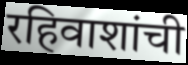
रहिवाशांची